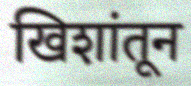
खिशांतून